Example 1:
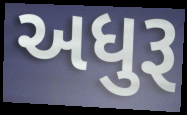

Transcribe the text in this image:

અધુરૂ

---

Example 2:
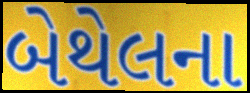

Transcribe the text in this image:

બેથેલના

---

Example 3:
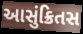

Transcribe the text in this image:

આસુંક્રિતસ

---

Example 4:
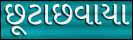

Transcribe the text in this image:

છૂટાછવાયા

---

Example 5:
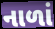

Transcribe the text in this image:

નાળાં